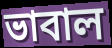
ভাবাল